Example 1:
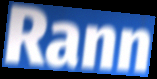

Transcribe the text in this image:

Rann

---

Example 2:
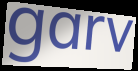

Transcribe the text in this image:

garv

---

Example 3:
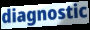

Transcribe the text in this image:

diagnostic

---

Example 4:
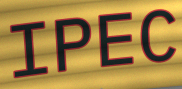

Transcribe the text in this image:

IPEC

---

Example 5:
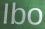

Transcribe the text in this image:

Ibo